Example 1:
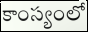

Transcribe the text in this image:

కాంస్యంలో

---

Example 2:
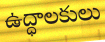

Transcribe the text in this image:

ఉద్ధాలకులు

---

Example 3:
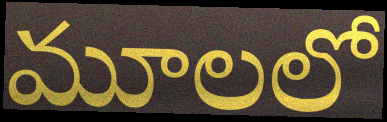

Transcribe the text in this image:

మూలలో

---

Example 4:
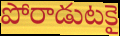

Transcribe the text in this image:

పోరాడుటకై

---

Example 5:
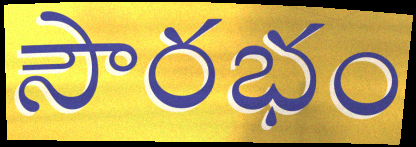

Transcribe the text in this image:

సౌరభం